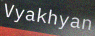
Vyakhyan